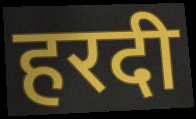
हरदी